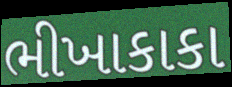
ભીખાકાકા